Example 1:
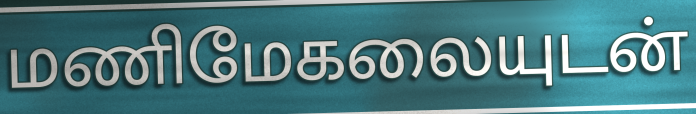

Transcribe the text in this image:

மணிமேகலையுடன்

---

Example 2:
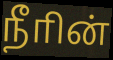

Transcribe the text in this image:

நீரின்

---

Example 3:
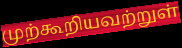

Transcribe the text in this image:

முற்கூறியவற்றுள்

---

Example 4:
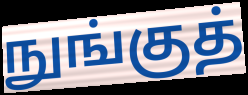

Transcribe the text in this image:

நுங்குத்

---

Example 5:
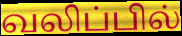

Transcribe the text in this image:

வலிப்பில்